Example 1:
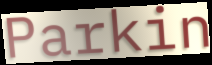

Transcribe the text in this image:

Parkin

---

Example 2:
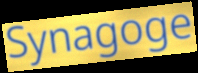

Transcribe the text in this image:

Synagoge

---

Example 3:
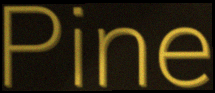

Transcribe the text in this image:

Pine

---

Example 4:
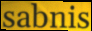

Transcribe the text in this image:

sabnis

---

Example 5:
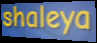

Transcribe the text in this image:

shaleya